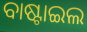
ବାଷ୍ଟାଇଲ